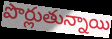
పొర్లుతున్నాయి